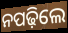
ନପଢ଼ିଲେ